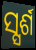
ସ୍ସର୍ଶ